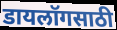
डायलॉगसाठी